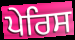
ਪੇਰਿਸ